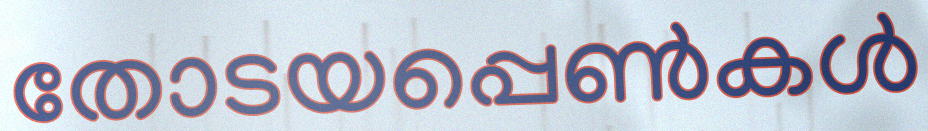
തോടയപ്പെൺകൾ